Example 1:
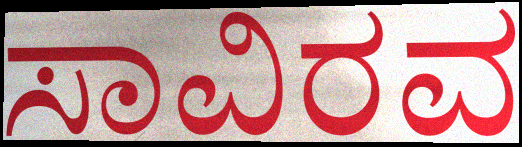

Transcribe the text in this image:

ಸಾವಿರವ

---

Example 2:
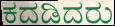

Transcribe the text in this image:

ಕದಡಿದರು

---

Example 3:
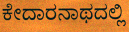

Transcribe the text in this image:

ಕೇದಾರನಾಥದಲ್ಲಿ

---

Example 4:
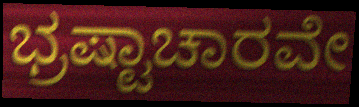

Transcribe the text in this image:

ಭ್ರಷ್ಟಾಚಾರವೇ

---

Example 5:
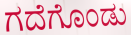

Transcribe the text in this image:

ಗದೆಗೊಂಡು